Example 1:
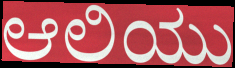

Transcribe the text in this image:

ಆಲಿಯು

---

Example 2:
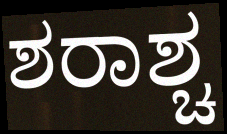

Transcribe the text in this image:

ಶರಾಶ್ಚ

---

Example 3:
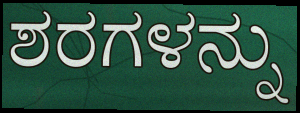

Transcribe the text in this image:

ಶರಗಳನ್ನು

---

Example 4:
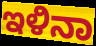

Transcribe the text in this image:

ಇಳಿನಾ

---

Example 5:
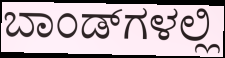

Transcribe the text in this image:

ಬಾಂಡ್‌ಗಳಲ್ಲಿ